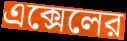
এক্সেলের